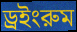
ড্রইংরুম